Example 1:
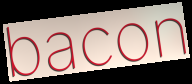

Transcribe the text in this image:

bacon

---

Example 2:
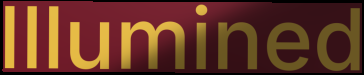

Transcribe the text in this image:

Illumined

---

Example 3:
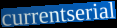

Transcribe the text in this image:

currentserial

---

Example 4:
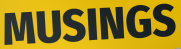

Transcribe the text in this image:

MUSINGS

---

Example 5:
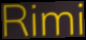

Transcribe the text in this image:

Rimi